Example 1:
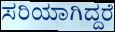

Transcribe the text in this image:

ಸರಿಯಾಗಿದ್ದರೆ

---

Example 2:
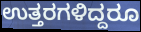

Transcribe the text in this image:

ಉತ್ತರಗಳಿದ್ದರೂ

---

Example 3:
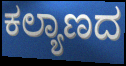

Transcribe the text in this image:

ಕಲ್ಯಾಣದ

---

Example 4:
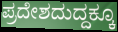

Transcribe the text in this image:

ಪ್ರದೇಶದುದ್ದಕ್ಕೂ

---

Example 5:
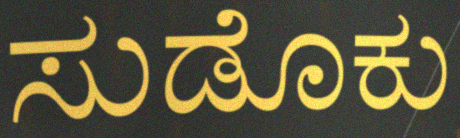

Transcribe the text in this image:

ಸುಡೊಕು